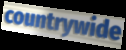
countrywide